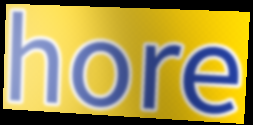
hore